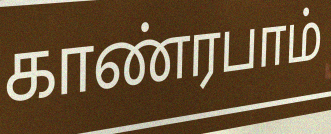
காண்ரபாம்